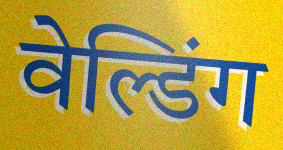
वेल्डिंग